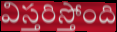
విస్తరిస్తోంది